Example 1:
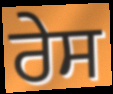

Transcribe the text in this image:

ਰੇਸ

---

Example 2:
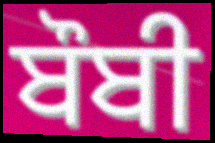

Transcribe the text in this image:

ਬੌਬੀ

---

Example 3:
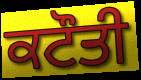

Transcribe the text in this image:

ਕਟੌਤੀ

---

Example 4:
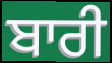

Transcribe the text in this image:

ਬਾਰੀ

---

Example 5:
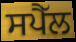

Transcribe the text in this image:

ਸਪੈੱਲ